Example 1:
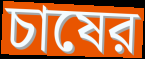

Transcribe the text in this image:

চাষের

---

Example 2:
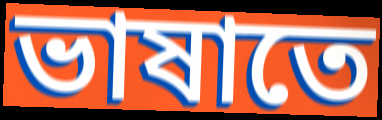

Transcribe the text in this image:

ভাষাতে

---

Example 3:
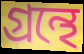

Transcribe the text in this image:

গ্রন্থে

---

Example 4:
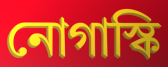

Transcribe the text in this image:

নোগাস্কি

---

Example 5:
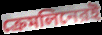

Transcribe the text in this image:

ক্রেমলিনেরই